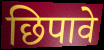
छिपावे